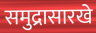
समुद्रासारखे